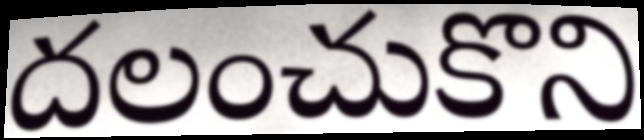
దలంచుకొని